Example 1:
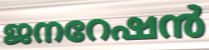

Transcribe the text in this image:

ജനറേഷൻ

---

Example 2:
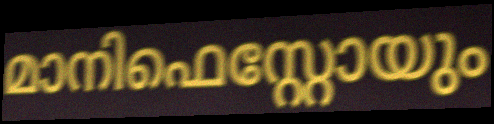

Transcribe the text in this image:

മാനിഫെസ്റ്റോയും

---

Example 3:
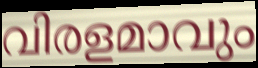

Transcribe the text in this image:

വിരളമാവും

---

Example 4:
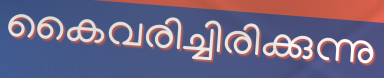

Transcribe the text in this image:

കൈവരിച്ചിരിക്കുന്നു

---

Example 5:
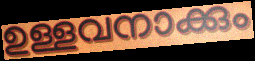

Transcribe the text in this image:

ഉള്ളവനാക്കും